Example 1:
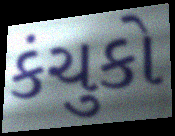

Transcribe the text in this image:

કંચુકો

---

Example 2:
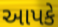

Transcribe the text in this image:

આપકે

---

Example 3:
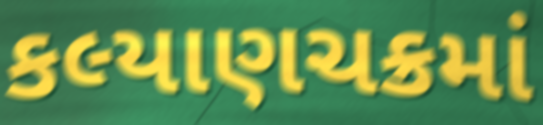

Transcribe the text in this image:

કલ્યાણચક્રમાં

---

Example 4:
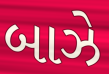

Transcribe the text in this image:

બાઝે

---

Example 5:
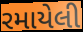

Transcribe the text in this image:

રમાયેલી